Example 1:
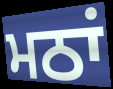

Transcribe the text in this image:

ਮਠਾਂ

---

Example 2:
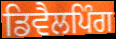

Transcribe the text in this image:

ਡਿਵੈਲਪਿੰਗ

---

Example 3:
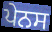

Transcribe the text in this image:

ਪੇਨਸ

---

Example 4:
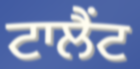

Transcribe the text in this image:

ਟਾਲੈਂਟ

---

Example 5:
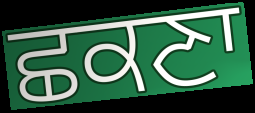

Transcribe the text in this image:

ਛਕਣਾ